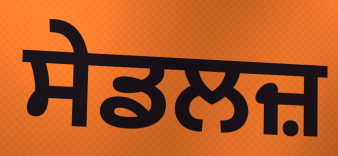
ਸੇਡਲਜ਼